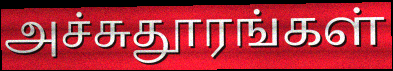
அச்சுதூரங்கள்